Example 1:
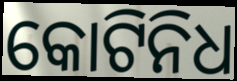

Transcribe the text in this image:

କୋଟିନିଧ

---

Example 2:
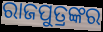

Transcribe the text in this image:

ରାଜପୁତ୍ରଙ୍କର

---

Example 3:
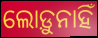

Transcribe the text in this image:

ଲୋଡ଼ୁନାହିଁ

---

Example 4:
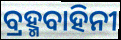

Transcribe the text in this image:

ବ୍ରହ୍ମବାହିନୀ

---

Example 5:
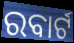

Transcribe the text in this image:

ରବାର୍ଟ